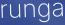
runga